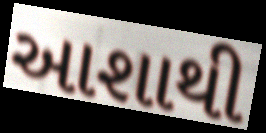
આશાથી